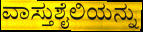
ವಾಸ್ತುಶೈಲಿಯನ್ನು